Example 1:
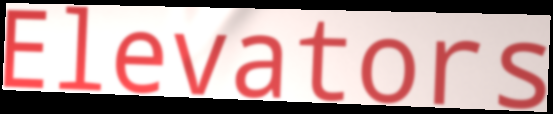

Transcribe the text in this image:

Elevators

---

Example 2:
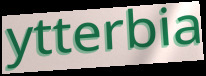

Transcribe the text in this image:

ytterbia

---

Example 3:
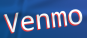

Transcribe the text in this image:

Venmo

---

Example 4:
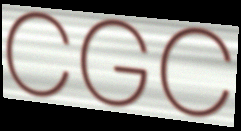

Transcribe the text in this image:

CGC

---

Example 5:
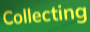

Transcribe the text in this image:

Collecting